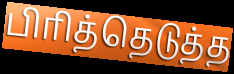
பிரித்தெடுத்த